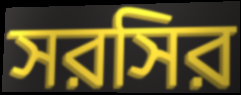
সরসির